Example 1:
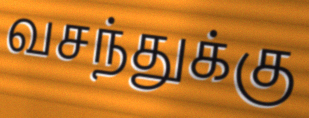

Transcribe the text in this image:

வசந்துக்கு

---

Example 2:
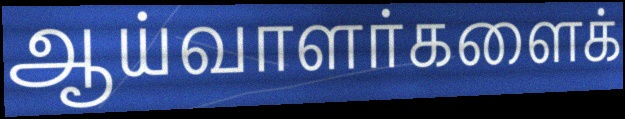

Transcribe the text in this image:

ஆய்வாளர்களைக்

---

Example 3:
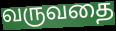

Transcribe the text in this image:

வருவதை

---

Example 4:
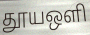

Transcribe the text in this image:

தூயஒளி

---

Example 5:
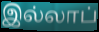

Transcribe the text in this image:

இல்லாப்